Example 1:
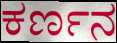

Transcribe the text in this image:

ಕರ್ಣನ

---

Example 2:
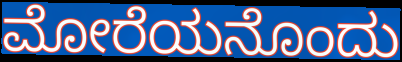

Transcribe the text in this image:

ಮೋರೆಯನೊಂದು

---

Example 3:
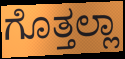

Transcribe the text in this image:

ಗೊತ್ತಲ್ಲಾ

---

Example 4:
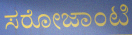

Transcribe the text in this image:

ಸರೋಜಾಂಟಿ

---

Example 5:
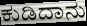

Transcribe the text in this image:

ಕುಡಿದಾನು